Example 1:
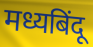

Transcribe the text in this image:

मध्यबिंदू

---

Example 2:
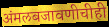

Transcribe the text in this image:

अंमलबजावणीचीही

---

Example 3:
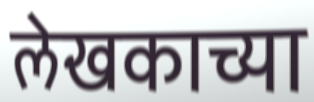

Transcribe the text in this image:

लेखकाच्या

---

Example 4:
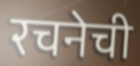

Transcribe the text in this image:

रचनेची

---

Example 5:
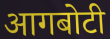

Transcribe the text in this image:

आगबोटी